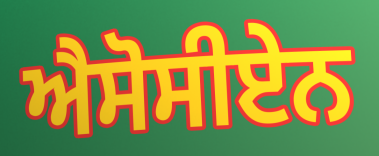
ਐਸੋਸੀਏਨ